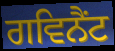
ਗਵਿਨੈਂਟ